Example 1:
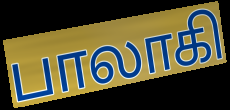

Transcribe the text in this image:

பாலாகி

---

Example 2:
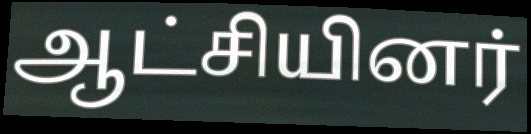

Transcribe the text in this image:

ஆட்சியினர்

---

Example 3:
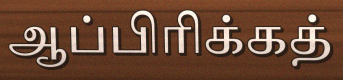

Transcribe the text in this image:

ஆப்பிரிக்கத்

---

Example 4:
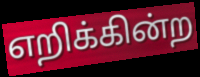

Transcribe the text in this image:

எறிக்கின்ற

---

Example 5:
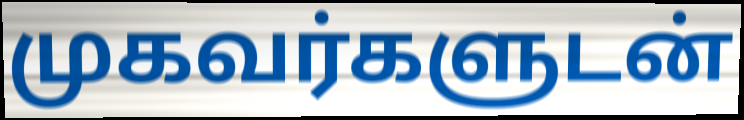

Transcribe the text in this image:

முகவர்களுடன்